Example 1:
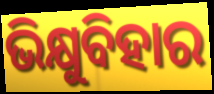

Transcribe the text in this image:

ଭିକ୍ଷୁବିହାର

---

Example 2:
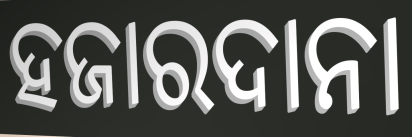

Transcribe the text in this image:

ହଜାରଦାନା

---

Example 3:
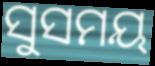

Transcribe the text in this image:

ସୁସମୟ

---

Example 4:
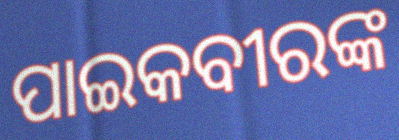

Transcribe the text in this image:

ପାଇକବୀରଙ୍କ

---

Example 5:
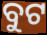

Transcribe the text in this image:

ବୁଟ